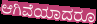
ಆಗಿವೆಯಾದರೂ